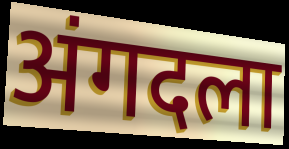
अंगदला